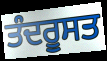
ਤੰਦਰੂਸਤ